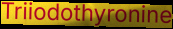
Triiodothyronine